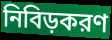
নিবিড়করণ